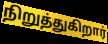
நிறுத்துகிறார்